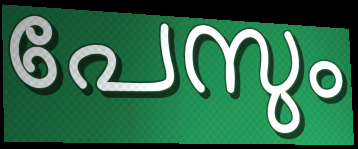
പേസും